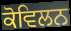
ਕੋਵਿਲਨ